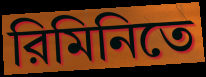
রিমিনিতে